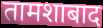
तामशाबाद